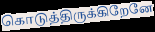
கொடுத்திருக்கிறேனே